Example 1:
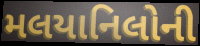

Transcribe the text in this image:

મલયાનિલોની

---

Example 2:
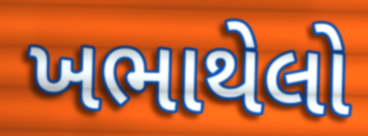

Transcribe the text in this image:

ખભાથેલો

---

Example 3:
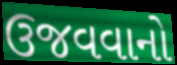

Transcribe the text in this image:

ઉજવવાનો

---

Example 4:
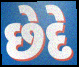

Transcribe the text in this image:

છેદે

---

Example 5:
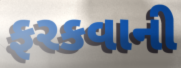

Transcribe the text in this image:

ફરકવાની